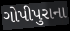
ગોપીપુરાના